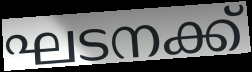
ഘടനക്ക്